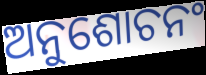
ଅନୁଶୋଚନଂ